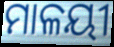
ମାଳୟୀ